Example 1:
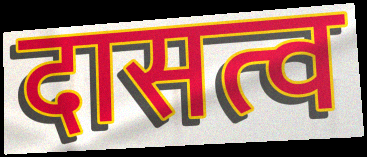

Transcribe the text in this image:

दासत्व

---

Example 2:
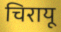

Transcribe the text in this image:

चिरायू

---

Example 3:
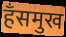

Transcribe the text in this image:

हँसमुख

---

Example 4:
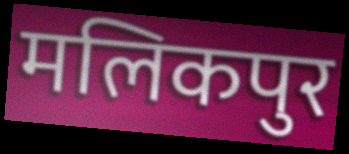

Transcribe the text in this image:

मलिकपुर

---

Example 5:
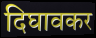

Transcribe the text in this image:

दिघावकर